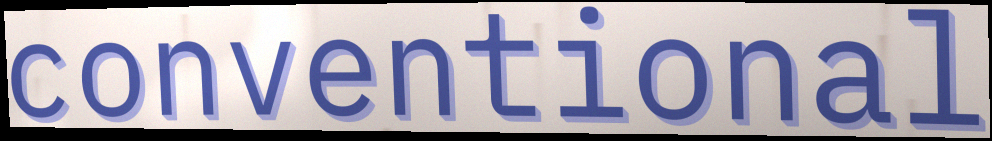
conventional